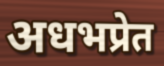
अधभप्रेत